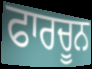
ਫਾਰਚੂਨ